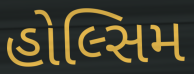
હોલ્સિમ